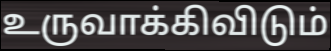
உருவாக்கிவிடும்